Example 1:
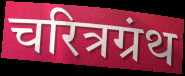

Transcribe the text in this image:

चरित्रग्रंथ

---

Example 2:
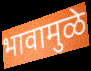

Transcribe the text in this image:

भावामुळे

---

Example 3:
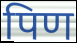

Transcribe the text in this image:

पिण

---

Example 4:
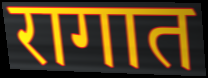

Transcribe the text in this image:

रागात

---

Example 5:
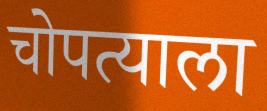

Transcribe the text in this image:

चोपत्याला